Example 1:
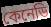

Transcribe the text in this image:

কেনেডি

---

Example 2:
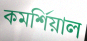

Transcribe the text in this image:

কমর্শিয়াল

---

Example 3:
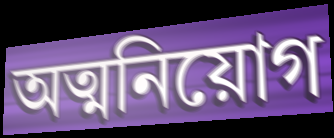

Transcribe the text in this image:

অত্মনিয়োগ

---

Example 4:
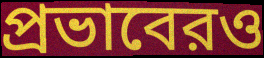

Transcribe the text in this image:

প্রভাবেরও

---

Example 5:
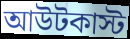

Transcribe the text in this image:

আউটকাস্ট